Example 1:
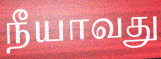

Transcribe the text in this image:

நீயாவது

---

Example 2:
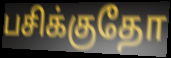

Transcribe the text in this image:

பசிக்குதோ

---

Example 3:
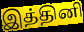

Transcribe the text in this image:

இத்தினி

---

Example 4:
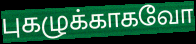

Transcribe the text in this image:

புகழுக்காகவோ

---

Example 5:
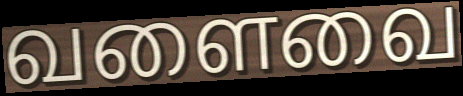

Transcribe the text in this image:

வளைவை